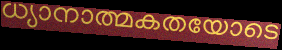
ധ്യാനാത്മകതയോടെ